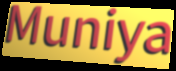
Muniya